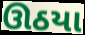
ઊઠયા